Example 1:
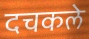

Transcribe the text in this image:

दचकले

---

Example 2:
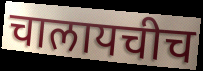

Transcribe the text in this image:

चालायचीच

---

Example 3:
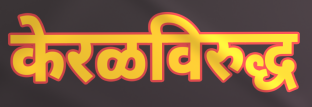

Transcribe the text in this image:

केरळविरुद्ध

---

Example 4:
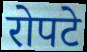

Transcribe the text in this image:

रोपटे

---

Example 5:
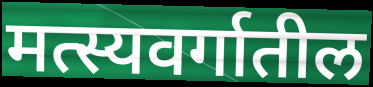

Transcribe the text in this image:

मत्स्यवर्गातील